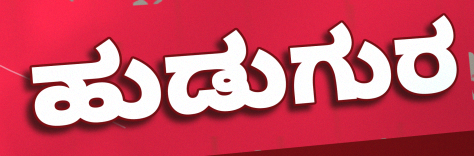
ಹುಡುಗುರ